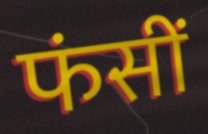
फंसीं